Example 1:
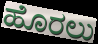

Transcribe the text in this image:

ಹೊರಲು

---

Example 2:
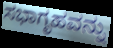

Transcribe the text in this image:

ಸಭಾಗೃಹವನ್ನು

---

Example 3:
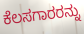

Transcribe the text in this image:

ಕೆಲಸಗಾರರನ್ನು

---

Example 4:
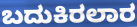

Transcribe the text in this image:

ಬದುಕಿರಲಾರ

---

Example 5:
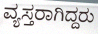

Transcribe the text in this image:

ವ್ಯಸ್ತರಾಗಿದ್ದರು